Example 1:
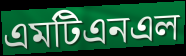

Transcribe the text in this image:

এমটিএনএল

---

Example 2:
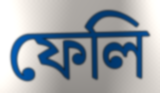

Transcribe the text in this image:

ফেলি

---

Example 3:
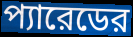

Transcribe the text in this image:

প্যারেডের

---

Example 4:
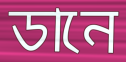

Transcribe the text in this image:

ডানে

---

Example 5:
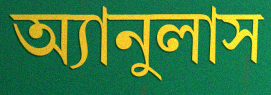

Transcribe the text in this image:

অ্যানুলাস